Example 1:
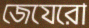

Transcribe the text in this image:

জেযেরো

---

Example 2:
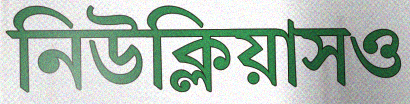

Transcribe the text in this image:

নিউক্লিয়াসও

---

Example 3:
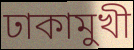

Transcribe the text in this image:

ঢাকামুখী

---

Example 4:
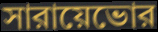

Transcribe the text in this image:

সারায়েভোর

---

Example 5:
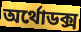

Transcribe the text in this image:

অর্থোডক্স